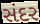
સંદર